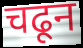
चढून